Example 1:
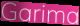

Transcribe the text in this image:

Garima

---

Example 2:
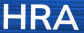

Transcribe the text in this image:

HRA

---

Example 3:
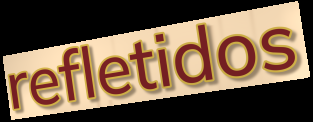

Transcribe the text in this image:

refletidos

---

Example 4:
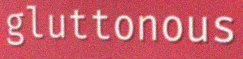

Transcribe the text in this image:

gluttonous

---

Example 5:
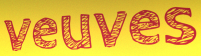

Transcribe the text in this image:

veuves